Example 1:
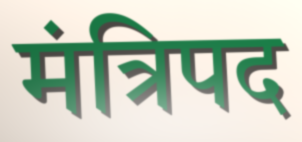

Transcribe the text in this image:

मंत्रिपद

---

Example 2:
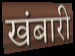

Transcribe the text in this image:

खंबारी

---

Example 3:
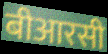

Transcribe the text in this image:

बीआरसी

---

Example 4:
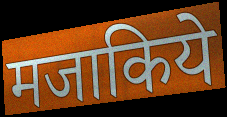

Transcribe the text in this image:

मजाकिये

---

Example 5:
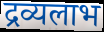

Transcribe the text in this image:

द्रव्यलाभ